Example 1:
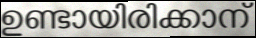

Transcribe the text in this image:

ഉണ്ടായിരിക്കാന്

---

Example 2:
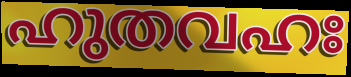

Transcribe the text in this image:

ഹുതവഹഃ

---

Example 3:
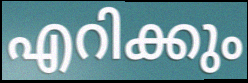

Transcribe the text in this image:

എറിക്കും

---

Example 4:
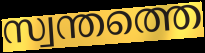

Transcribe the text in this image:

സ്വന്തത്തെ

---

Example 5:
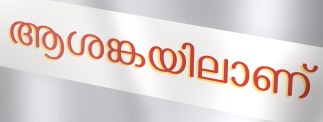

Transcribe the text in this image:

ആശങ്കയിലാണ്